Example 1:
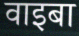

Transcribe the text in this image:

वाइबा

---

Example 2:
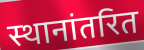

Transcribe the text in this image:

स्थानांतरित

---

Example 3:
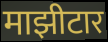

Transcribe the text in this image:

माझीटार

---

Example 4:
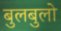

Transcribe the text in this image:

बुलबुलो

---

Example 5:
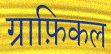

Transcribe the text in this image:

ग्राफ़िकल